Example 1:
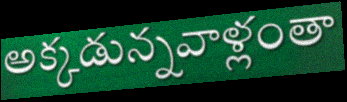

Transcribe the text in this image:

అక్కడున్నవాళ్లంతా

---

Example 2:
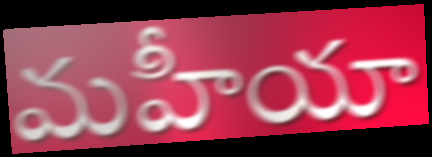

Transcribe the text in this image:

మహీయా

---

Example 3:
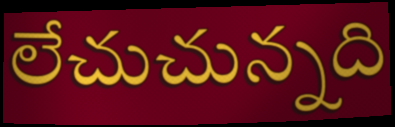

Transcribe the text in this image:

లేచుచున్నది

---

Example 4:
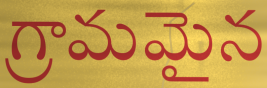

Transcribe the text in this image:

గ్రామమైన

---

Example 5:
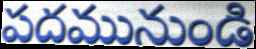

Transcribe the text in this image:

పదమునుండి